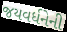
જયવર્ધનેની